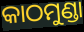
କାଠମୁଣ୍ଡା